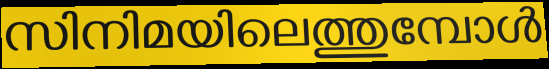
സിനിമയിലെത്തുമ്പോൾ